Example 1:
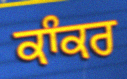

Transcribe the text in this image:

ਕਾੰਕਰ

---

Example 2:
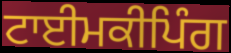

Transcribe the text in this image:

ਟਾਈਮਕੀਪਿੰਗ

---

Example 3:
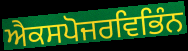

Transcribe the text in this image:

ਐਕਸਪੋਜਰਵਿਭਿੰਨ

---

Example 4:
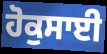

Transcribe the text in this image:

ਹੋਕੁਸਾਈ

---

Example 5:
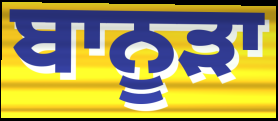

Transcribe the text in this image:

ਬਾਨੂੜਾ